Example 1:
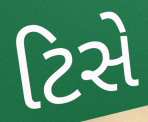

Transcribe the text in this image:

ટિસે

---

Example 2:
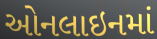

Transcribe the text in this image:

ઓનલાઇનમાં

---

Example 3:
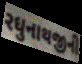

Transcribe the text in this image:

રઘુનાથજીની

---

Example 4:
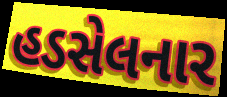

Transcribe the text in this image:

હડસેલનાર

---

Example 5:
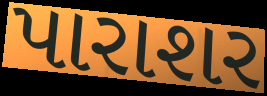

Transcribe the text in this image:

પારાશર